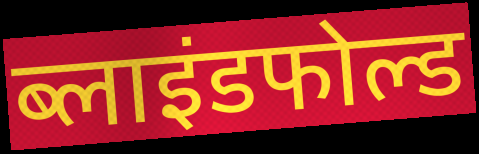
ब्लाइंडफोल्ड